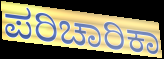
ಪರಿಚಾರಿಕಾ